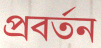
প্ৰবৰ্তন